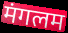
मंगलम